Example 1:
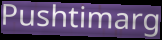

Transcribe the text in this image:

Pushtimarg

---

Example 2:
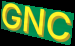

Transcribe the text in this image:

GNC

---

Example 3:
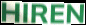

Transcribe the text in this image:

HIREN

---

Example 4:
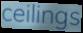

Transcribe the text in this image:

ceilings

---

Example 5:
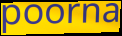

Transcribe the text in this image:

poorna